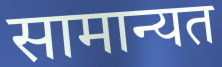
सामान्यत